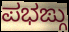
ಪಭಙ್ಗು